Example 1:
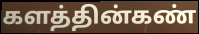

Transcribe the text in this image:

களத்தின்கண்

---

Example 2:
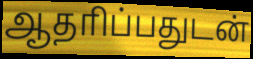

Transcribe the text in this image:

ஆதரிப்பதுடன்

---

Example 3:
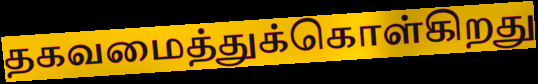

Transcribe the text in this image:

தகவமைத்துக்கொள்கிறது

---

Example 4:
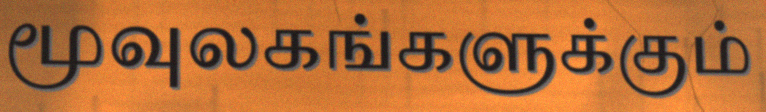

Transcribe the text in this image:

மூவுலகங்களுக்கும்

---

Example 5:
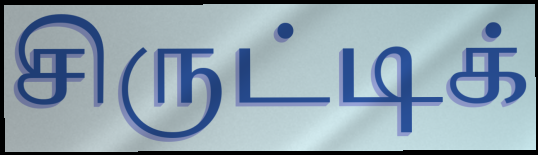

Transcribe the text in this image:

சிருட்டிக்